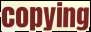
copying